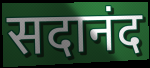
सदानंद